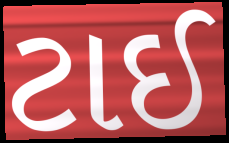
ટાઈ